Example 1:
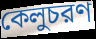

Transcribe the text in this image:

কেলুচরণ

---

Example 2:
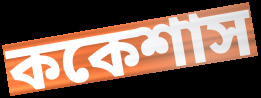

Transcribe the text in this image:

ককেশাস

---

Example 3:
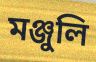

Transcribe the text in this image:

মঞ্জুলি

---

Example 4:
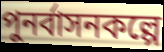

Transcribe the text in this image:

পুনর্বাসনকল্পে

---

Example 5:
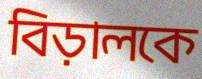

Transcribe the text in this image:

বিড়ালকে